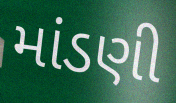
માંડણી